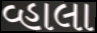
વ્હાલા